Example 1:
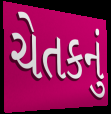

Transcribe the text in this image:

ચેતકનું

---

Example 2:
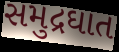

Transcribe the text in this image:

સમુદ્રઘાત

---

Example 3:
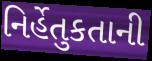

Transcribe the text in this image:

નિર્હેતુકતાની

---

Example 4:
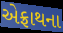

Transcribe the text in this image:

એફ્રાથના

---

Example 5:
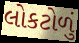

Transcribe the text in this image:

લોકટોળું